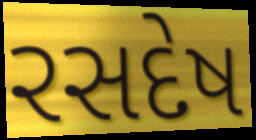
રસદેષ